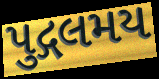
પુદ્ગલમય